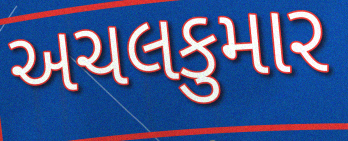
અચલકુમાર